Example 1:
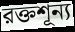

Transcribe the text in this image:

রক্তশূন্য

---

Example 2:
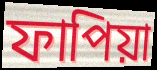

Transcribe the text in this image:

ফাপিয়া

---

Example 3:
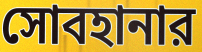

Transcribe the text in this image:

সোবহানার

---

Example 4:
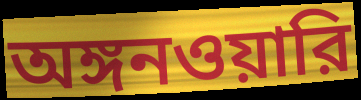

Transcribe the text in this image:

অঙ্গনওয়ারি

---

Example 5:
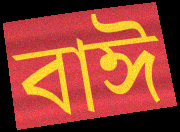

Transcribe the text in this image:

বাঈ